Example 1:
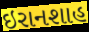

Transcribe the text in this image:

ઇરાનશાહ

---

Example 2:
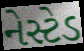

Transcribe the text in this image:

નેસ્ટેડ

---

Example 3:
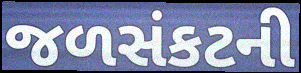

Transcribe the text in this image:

જળસંકટની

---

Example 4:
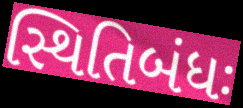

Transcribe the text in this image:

સ્થિતિબંધઃ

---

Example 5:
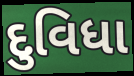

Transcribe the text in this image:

દુવિધા